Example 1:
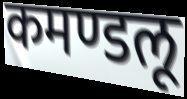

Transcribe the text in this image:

कमण्डलू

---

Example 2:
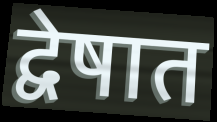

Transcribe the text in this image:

द्वेषात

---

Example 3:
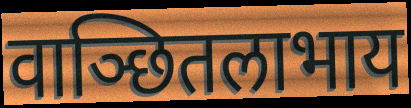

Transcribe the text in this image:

वाञ्छितलाभाय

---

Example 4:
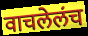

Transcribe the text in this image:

वाचलेलंच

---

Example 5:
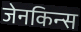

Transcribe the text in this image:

जेनकिन्स